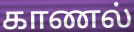
காணல்